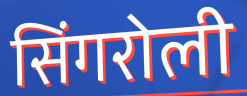
सिंगरोली